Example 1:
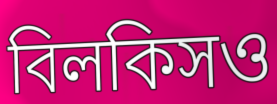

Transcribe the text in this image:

বিলকিসও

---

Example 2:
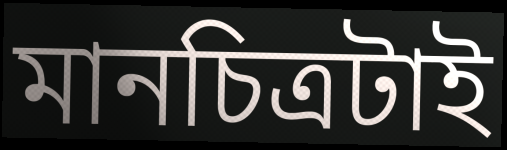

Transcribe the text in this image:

মানচিত্রটাই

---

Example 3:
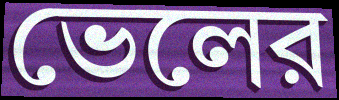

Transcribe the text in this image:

ভেলের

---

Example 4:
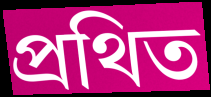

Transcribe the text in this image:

প্রথিত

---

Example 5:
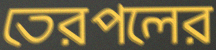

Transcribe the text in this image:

তেরপলের